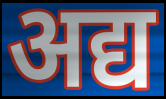
अद्य